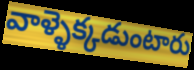
వాళ్ళెక్కడుంటారు